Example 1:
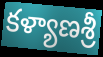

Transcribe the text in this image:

కళ్యాణశ్రీ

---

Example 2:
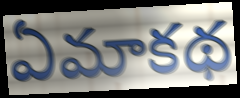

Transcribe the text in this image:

ఏమాకథ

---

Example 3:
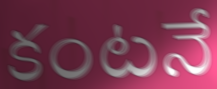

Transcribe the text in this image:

కంటనే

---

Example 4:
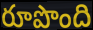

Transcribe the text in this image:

రూపొంది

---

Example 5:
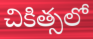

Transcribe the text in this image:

చికిత్సలో